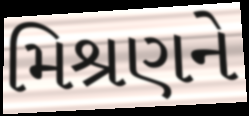
મિશ્રણને